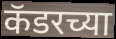
कॅडरच्या